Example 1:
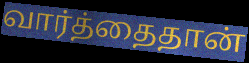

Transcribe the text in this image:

வார்த்தைதான்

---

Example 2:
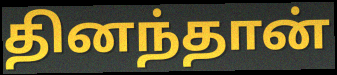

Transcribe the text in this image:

தினந்தான்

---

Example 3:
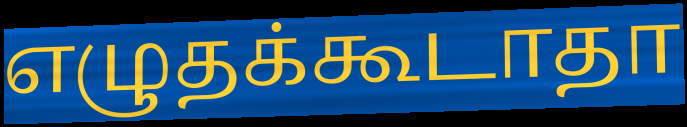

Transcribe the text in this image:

எழுதக்கூடாதா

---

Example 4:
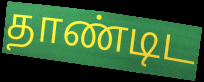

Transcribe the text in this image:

தாண்டிட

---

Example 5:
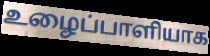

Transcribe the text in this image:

உழைப்பாளியாக